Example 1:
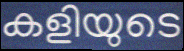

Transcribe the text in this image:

കളിയുടെ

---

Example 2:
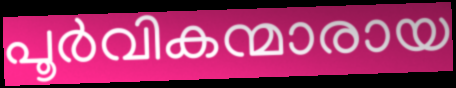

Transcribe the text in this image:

പൂർവികന്മാരായ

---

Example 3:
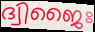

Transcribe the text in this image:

ദ്വിജൈഃ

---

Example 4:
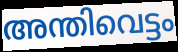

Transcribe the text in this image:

അന്തിവെട്ടം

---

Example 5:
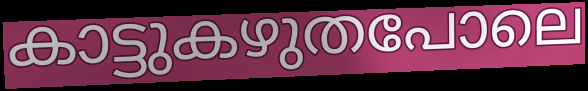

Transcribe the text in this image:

കാട്ടുകഴുതപോലെ